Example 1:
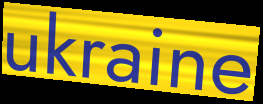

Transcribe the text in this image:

ukraine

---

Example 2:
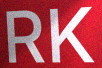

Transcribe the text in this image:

RK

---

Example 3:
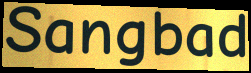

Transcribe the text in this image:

Sangbad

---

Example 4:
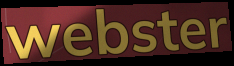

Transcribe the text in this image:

webster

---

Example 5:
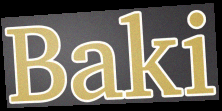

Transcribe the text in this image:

Baki